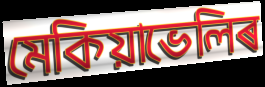
মেকিয়াভেলিৰ